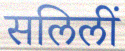
सलिलीं